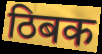
ठिबक